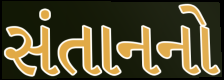
સંતાનનો